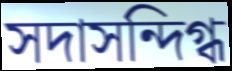
সদাসন্দিগ্ধ